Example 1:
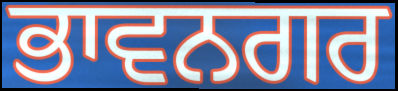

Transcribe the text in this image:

ਭਾਵਨਗਰ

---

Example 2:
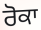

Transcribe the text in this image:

ਰੋਕਾ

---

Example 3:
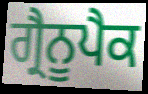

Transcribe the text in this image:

ਗ੍ਰੈਨੂਪੈਕ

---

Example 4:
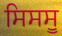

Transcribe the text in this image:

ਸਿਸਸੂ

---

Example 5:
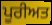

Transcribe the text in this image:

ਪੂਰੀਅਤ